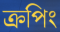
ক্রপিং